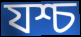
যশ্চ